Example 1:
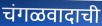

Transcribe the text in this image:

चंगळवादाची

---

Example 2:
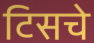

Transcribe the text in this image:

टिसचे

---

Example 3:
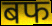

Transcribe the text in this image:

बफ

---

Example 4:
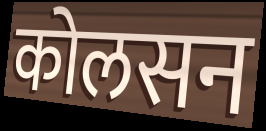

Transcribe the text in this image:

कोलसन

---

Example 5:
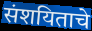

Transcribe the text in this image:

संशयिताचे